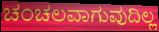
ಚಂಚಲವಾಗುವುದಿಲ್ಲ